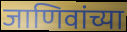
जाणिवांच्या